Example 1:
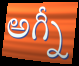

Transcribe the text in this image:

అగ్నీ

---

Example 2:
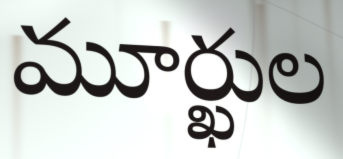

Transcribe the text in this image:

మూర్ఖుల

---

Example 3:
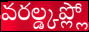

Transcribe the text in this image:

వరల్డ్కప్ల్లో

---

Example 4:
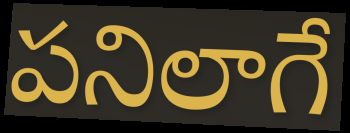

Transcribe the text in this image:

పనిలాగే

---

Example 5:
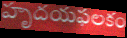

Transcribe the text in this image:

హృదయఫలకం